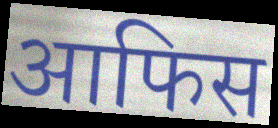
आफिस